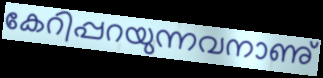
കേറിപ്പറയുന്നവനാണു്